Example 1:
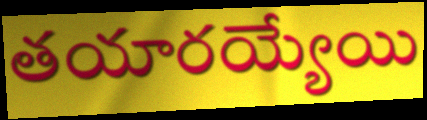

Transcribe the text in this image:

తయారయ్యేయి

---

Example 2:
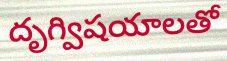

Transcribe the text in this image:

దృగ్విషయాలతో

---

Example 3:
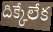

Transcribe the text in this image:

దిక్కేలేక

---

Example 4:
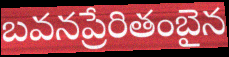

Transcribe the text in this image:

బవనప్రేరితంబైన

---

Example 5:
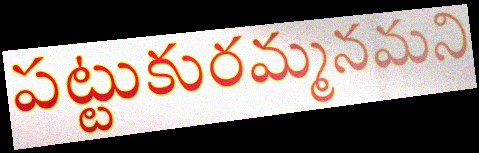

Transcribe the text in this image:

పట్టుకురమ్మనమని